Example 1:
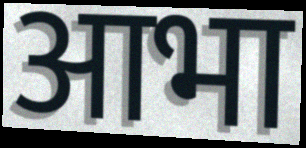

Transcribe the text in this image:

आभा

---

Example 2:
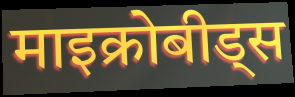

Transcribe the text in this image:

माइक्रोबीड्स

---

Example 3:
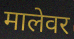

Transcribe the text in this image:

मालेवर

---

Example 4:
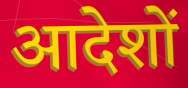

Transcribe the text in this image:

आदेशों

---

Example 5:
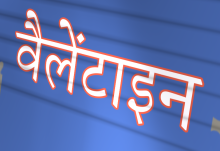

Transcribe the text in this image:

वैलेंटाइन